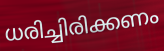
ധരിച്ചിരിക്കണം